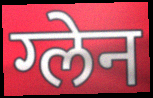
ग्लेन